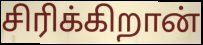
சிரிக்கிறான்